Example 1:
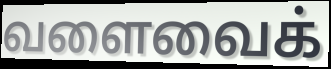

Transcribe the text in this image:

வளைவைக்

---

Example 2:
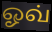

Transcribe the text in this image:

ஓவ்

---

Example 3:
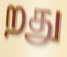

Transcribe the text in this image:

றது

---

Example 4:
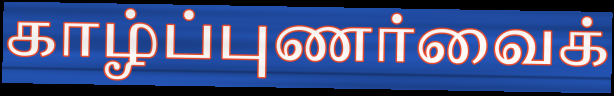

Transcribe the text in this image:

காழ்ப்புணர்வைக்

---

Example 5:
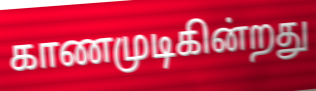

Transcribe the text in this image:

காணமுடிகின்றது